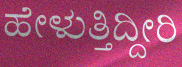
ಹೇಳುತ್ತಿದ್ದೀರಿ